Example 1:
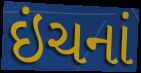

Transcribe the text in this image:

ઇંચનાં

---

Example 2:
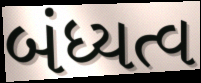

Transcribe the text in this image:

બંધ્યત્વ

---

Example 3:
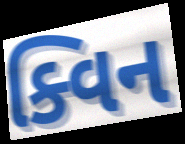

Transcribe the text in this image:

ક્વિન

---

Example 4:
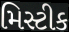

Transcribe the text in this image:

મિસ્ટીક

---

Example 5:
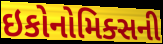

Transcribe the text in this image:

ઇકોનોમિક્સની